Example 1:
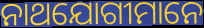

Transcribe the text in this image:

ନାଥଯୋଗୀମାନେ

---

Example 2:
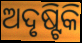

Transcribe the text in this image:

ଅଦୃଷ୍ଟିକି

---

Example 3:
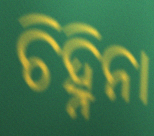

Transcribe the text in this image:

ଚିହ୍ନିନା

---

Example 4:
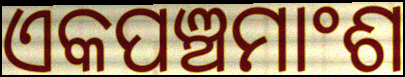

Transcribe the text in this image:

ଏକପଞ୍ଚମାଂଶ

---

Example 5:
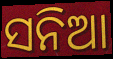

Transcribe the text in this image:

ସନିଆ